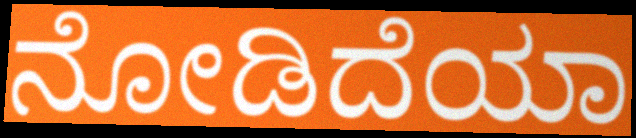
ನೋಡಿದೆಯಾ